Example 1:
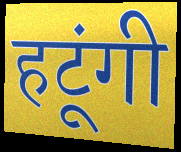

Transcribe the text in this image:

हटूंगी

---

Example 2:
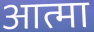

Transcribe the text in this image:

आत्‍मा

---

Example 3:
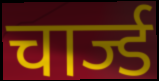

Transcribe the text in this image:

चार्ज्ड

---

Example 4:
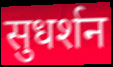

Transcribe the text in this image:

सुधर्शन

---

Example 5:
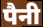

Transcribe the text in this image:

पैनी